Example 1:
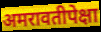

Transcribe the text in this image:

अमरावतीपेक्षा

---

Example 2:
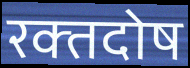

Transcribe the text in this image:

रक्‍तदोष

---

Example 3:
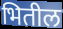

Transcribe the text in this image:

भितील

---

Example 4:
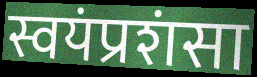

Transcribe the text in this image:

स्वयंप्रशंसा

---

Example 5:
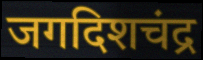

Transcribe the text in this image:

जगदिशचंद्र